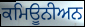
ਕਮਿਊਨੀਅਨ